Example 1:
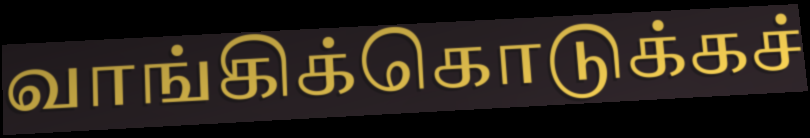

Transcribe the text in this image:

வாங்கிக்கொடுக்கச்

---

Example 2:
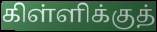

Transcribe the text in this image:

கிள்ளிக்குத்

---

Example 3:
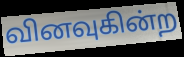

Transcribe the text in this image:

வினவுகின்ற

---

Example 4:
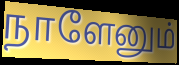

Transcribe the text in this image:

நாளேனும்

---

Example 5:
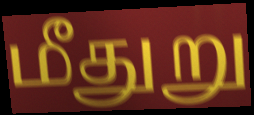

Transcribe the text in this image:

மீதுறு